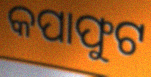
କପାଫୁଟ